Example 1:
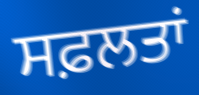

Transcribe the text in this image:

ਸਫ਼ਲਤਾਂ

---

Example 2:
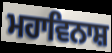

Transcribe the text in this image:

ਮਹਾਵਿਨਾਸ਼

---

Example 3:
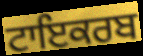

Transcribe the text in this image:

ਟਾਇਕਰਬ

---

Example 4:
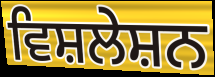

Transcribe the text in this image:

ਵਿਸ਼ਲੇਸ਼ਨ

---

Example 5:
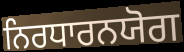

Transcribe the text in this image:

ਨਿਰਧਾਰਨਯੋਗ